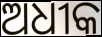
ଅଧୀକ